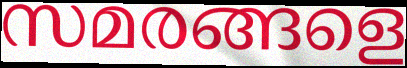
സമരങ്ങളെ